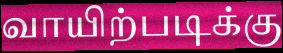
வாயிற்படிக்கு